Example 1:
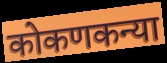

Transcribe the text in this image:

कोकणकन्या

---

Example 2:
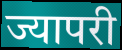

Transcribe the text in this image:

ज्यापरी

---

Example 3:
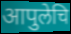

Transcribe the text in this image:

आपुलेचि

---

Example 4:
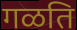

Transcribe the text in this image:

गळति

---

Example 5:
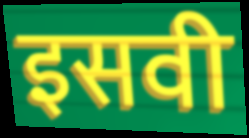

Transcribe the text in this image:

इसवी